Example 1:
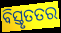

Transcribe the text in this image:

ବିସ୍ତୃତତର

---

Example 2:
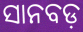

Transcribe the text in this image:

ସାନବଡ଼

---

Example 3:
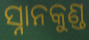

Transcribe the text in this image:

ସ୍ନାନକୁଣ୍ଡ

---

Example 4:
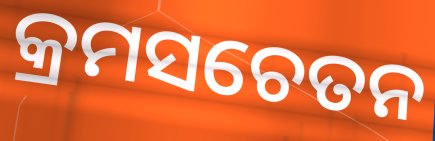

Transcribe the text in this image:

କ୍ରମସଚେତନ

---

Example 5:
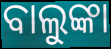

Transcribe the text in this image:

ବାଲୁଙ୍କା